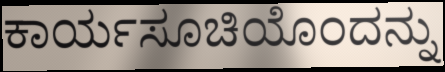
ಕಾರ್ಯಸೂಚಿಯೊಂದನ್ನು